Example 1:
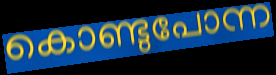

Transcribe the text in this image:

കൊണ്ടുപോന്ന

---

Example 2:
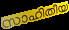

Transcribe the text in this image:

സാഹിതീയ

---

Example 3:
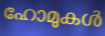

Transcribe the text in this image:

ഹോമുകൾ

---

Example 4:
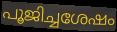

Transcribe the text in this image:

പൂജിച്ചശേഷം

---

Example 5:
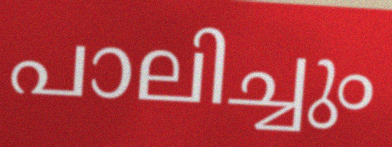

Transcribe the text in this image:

പാലിച്ചും